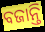
ବଜାନ୍ତି